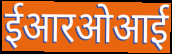
ईआरओआई